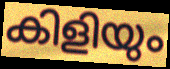
കിളിയും